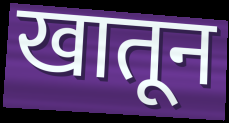
खातून